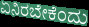
ಏನಿರಬೇಕೆಂದು